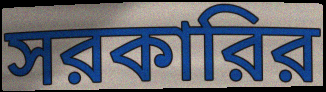
সরকারির